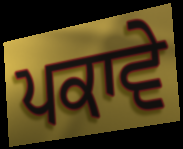
ਪਕਾਵੇ